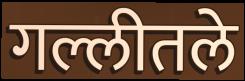
गल्लीतले